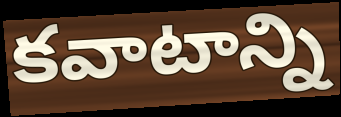
కవాటాన్ని